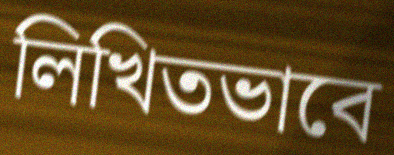
লিখিতভাবে